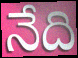
నేది